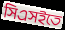
সিএসইতে